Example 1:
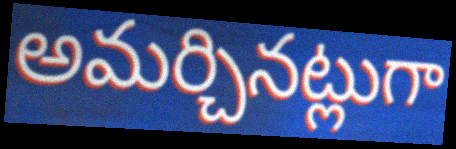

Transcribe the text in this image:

అమర్చినట్లుగా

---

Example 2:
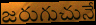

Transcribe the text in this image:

జరుగుచునే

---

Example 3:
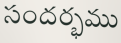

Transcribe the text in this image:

సందర్భము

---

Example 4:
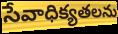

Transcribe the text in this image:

సేవాధిక్యతలను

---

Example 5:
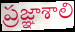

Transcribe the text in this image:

ప్రజ్ఞాశాలి